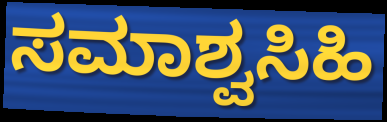
ಸಮಾಶ್ವಸಿಹಿ